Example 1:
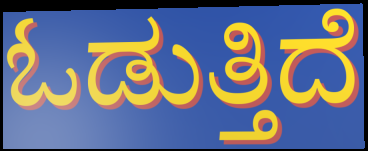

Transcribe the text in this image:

ಓಡುತ್ತಿದೆ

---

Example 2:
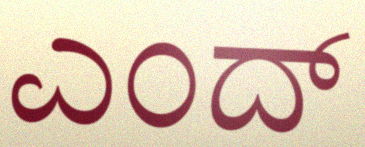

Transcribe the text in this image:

ಎಂದ್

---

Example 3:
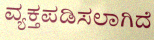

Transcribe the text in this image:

ವ್ಯಕ್ತಪಡಿಸಲಾಗಿದೆ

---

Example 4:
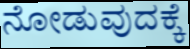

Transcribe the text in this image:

ನೋಡುವುದಕ್ಕೆ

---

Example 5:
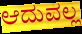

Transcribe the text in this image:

ಆದುವಲ್ಲ